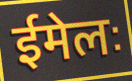
ईमेलः